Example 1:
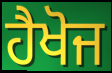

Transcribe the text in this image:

ਹੈਖੋਜ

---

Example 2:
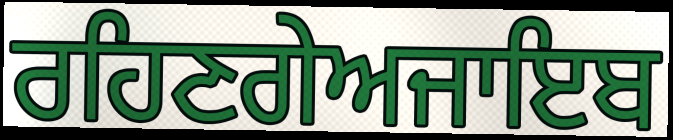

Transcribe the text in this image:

ਰਹਿਣਗੇਅਜਾਇਬ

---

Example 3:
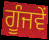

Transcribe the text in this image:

ਗੂੰਜਵੇਂ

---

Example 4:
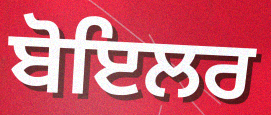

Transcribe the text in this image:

ਬੋਇਲਰ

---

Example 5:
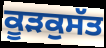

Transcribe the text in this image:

ਕੂੜਕੁਸੱਤ